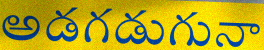
అడగడుగునా